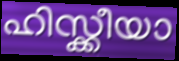
ഹിസ്ക്കീയാ